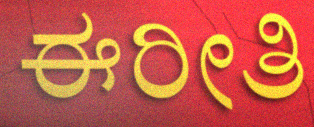
ಈರೀತಿ